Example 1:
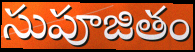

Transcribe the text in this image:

సుపూజితం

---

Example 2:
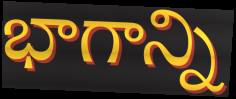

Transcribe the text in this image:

భాగాన్ని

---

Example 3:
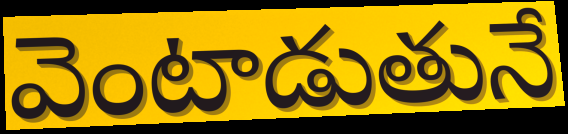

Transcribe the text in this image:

వెంటాడుతునే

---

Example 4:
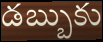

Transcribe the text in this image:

డబ్బుకు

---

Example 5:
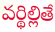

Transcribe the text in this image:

వర్థిల్లితే